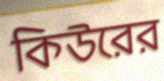
কিউরের